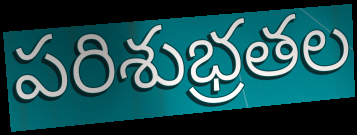
పరిశుభ్రతల